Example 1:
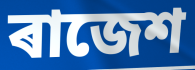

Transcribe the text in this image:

ৰাজেশ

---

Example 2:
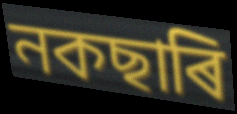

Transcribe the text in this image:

নকছাৰি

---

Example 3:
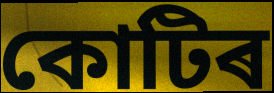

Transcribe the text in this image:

কোটিৰ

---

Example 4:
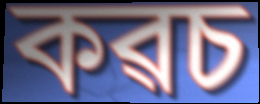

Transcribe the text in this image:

কৱচ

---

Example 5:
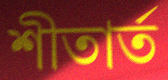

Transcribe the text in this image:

শীতাৰ্ত